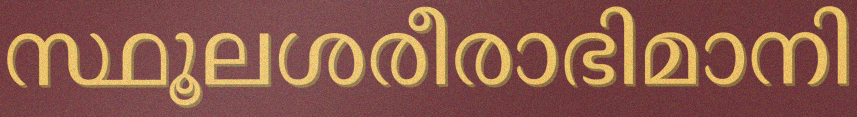
സ്ഥൂലശരീരാഭിമാനി